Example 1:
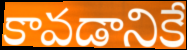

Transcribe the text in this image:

కావడానికే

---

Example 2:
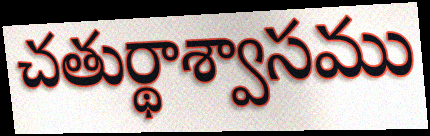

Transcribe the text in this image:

చతుర్థాశ్వాసము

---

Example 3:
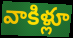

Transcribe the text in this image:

వాకిళ్లూ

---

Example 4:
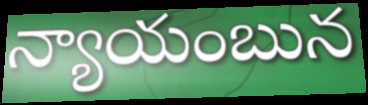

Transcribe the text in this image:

న్యాయంబున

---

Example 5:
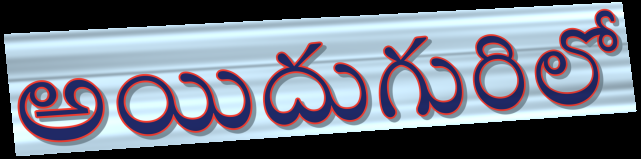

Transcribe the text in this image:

అయిదుగురిలో